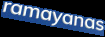
ramayanas